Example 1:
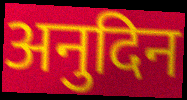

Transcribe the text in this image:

अनुदिन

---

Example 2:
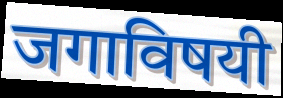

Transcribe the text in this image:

जगाविषयी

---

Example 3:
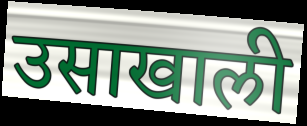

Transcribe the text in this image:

उसाखाली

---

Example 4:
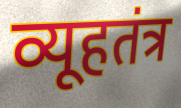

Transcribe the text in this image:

व्यूहतंत्र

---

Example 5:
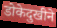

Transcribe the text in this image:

डोकेदुखीने